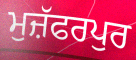
ਮੁਜ਼ੱਫਰਪੁਰ